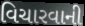
વિચારવાની